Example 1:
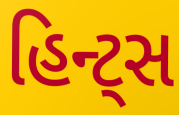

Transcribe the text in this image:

હિન્ટ્સ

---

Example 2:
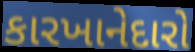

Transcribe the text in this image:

કારખાનેદારો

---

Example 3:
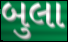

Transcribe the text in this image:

બુલા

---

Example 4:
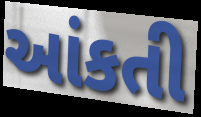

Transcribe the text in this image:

આંકતી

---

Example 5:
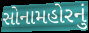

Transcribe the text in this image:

સોનામહોરનું